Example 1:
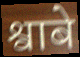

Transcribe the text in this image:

श्वाबे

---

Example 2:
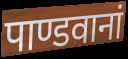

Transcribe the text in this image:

पाण्डवानां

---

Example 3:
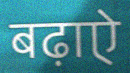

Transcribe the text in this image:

बढ़ाऐ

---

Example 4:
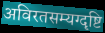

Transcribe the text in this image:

अविरतसम्यग्दृष्टि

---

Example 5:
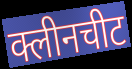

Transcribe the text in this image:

क्लीनचीट